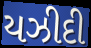
યઝીદી